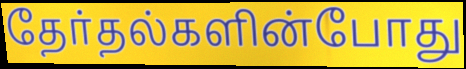
தேர்தல்களின்போது